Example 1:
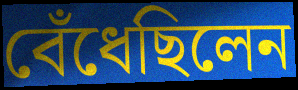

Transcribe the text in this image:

বেঁধেছিলেন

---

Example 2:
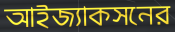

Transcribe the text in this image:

আইজ্যাকসনের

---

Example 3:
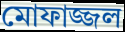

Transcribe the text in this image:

মোফাজ্জল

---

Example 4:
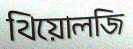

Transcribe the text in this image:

থিয়োলজি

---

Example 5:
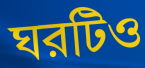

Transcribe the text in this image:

ঘরটিও